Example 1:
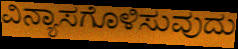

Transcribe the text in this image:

ವಿನ್ಯಾಸಗೊಳಿಸುವುದು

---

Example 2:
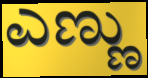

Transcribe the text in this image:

ಎಣ್ಣು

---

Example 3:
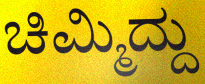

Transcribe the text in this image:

ಚಿಮ್ಮಿದ್ದು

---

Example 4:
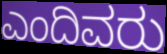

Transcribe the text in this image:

ಎಂದಿವರು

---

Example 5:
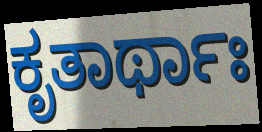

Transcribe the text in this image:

ಕೃತಾರ್ಥಾಃ